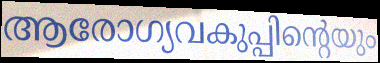
ആരോഗ്യവകുപ്പിന്റെയും